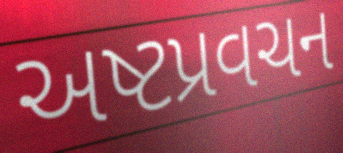
અષ્ટપ્રવચન